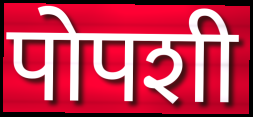
पोपशी